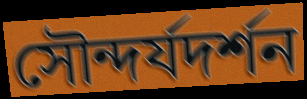
সৌন্দর্যদর্শন